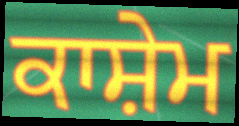
ਕਾਸ਼ੇਮ